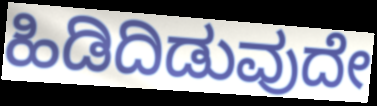
ಹಿಡಿದಿಡುವುದೇ